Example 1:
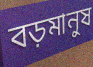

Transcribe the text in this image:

বড়মানুষ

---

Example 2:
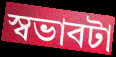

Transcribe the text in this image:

স্বভাবটা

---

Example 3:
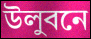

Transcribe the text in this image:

উলুবনে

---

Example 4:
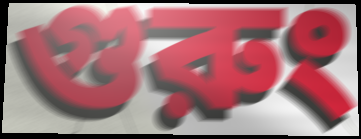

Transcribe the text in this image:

গুরুং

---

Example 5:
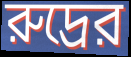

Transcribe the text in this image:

রুদ্রের